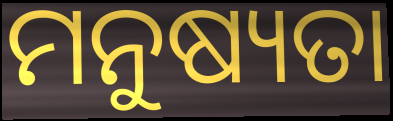
ମନୁଷ୍ୟତା